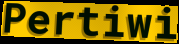
Pertiwi